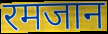
रमजान